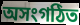
অসংগঠিত